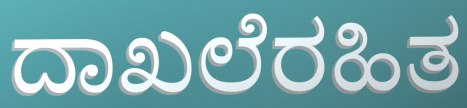
ದಾಖಲೆರಹಿತ